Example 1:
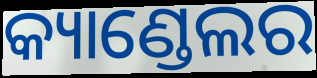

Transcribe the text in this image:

କ୍ୟାଣ୍ଡେଲର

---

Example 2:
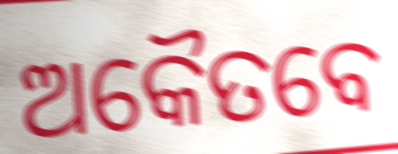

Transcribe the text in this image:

ଅକୈତବେ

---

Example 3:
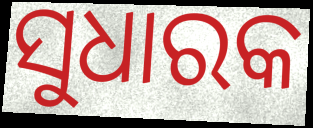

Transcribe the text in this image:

ସୁଧାରକ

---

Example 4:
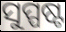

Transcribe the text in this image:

ସୁପ୍ପଷ୍ଟ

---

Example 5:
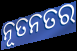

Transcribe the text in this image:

ନୂତନତର